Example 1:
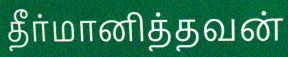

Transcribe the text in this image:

தீர்மானித்தவன்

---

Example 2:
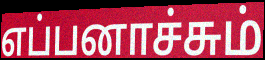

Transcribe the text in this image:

எப்பனாச்சும்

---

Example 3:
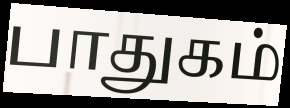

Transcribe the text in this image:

பாதுகம்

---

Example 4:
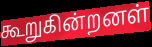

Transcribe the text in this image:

கூறுகின்றனள்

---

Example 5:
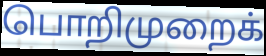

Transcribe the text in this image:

பொறிமுறைக்